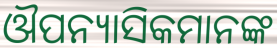
ଔପନ୍ୟାସିକମାନଙ୍କ